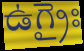
ఉగ్రైః